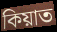
কিয়াত